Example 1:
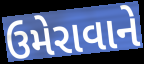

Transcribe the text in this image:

ઉમેરાવાને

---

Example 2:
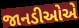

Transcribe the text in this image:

જાનડીઓએ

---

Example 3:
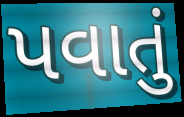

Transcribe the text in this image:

પવાતું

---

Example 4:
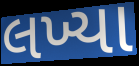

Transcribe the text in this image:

લખ્યા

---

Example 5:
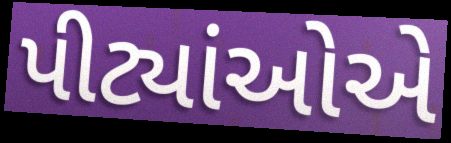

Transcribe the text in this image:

પીટ્યાંઓએ